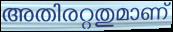
അതിരറ്റതുമാണ്